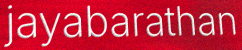
jayabarathan